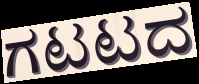
ಗಟಟದ